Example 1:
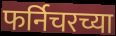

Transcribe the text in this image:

फर्निचरच्या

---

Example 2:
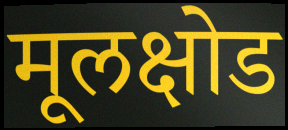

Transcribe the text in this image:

मूलक्षोड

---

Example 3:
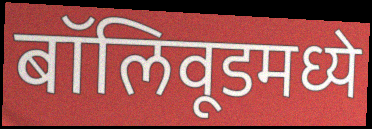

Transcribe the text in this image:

बॉलिवूडमध्ये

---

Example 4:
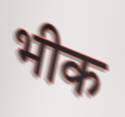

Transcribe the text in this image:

भीक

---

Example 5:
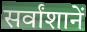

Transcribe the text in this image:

सर्वांशानें